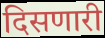
दिसणारी